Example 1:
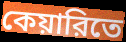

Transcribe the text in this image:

কেয়ারিতে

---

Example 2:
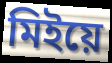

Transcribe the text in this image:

মিইয়ে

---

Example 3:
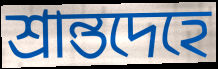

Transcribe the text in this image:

শ্রান্তদেহে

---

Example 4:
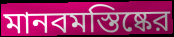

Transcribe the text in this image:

মানবমস্তিষ্কের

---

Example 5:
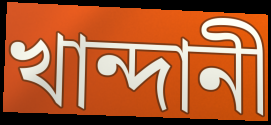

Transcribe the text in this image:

খান্দানী